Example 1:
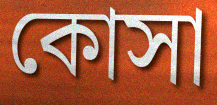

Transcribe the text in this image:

কোসা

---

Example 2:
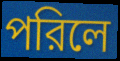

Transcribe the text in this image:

পরিলে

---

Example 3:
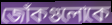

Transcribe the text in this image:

জোঁকগুলোকে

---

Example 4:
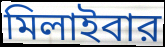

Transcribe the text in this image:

মিলাইবার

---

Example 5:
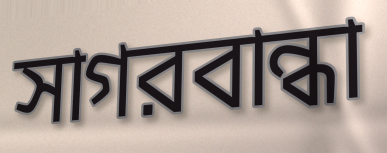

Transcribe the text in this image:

সাগরবান্ধা